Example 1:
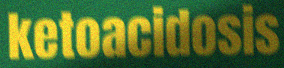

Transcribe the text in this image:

ketoacidosis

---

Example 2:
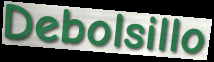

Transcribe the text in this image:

Debolsillo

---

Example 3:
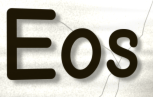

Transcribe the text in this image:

Eos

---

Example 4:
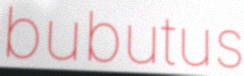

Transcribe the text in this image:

bubutus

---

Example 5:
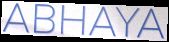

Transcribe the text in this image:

ABHAYA